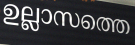
ഉല്ലാസത്തെ